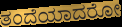
ತಂದೆಯಾದರೋ